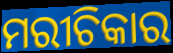
ମରୀଚିକାର